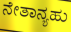
ನೇತಾನ್ಯಹು